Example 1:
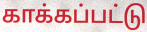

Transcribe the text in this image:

காக்கப்பட்டு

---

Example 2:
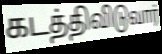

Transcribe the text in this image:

கடத்திவிடுவார்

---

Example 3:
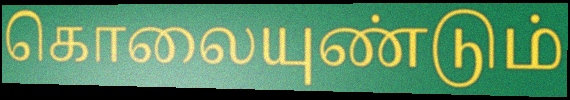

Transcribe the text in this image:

கொலையுண்டும்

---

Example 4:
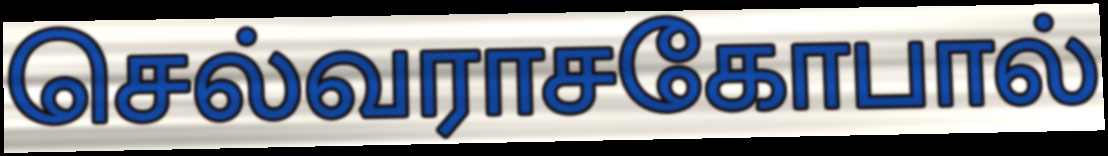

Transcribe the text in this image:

செல்வராசகோபால்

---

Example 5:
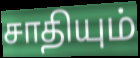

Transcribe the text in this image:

சாதியும்